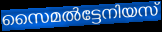
സൈമൽട്ടേനിയസ്